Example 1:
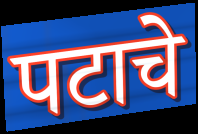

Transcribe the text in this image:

पटाचे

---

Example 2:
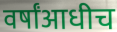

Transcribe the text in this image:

वर्षांआधीच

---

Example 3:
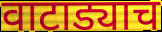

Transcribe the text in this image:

वाटाड्याच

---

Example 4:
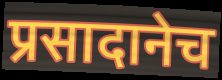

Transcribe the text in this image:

प्रसादानेच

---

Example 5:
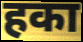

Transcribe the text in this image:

हका